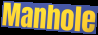
Manhole